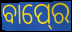
ବାପ୍‍ରେ